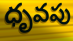
ధృవపు